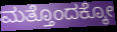
ಮತ್ತೊಂದಕ್ಕೋ